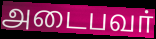
அடைபவர்